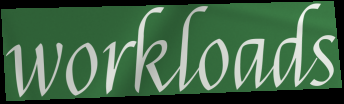
workloads